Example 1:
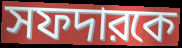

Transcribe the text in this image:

সফদারকে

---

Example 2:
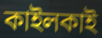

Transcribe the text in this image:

কাইলকাই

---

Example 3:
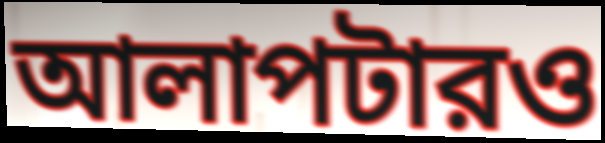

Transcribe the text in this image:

আলাপটারও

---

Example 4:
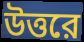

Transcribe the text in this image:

উত্তরে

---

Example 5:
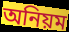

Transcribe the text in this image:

অনিয়ম